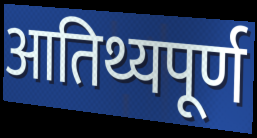
आतिथ्यपूर्ण